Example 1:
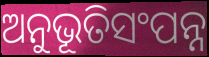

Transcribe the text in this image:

ଅନୁଭୂତିସଂପନ୍ନ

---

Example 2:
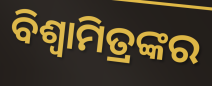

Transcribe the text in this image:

ବିଶ୍ବାମିତ୍ରଙ୍କର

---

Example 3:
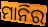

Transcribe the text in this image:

ମାନିର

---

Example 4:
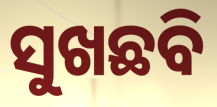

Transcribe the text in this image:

ସୁଖଛବି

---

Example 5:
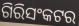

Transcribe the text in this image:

ଗିରିସଂକଟର